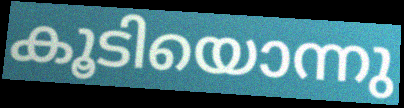
കൂടിയൊന്നു